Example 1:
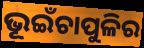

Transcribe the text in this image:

ଭୂଇଁଚାପୁଳିର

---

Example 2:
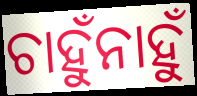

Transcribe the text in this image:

ଚାହୁଁନାହୁଁ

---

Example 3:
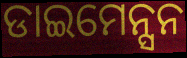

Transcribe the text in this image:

ଡାଇମେନ୍ସନ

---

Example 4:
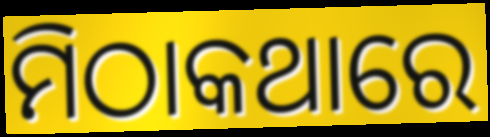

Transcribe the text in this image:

ମିଠାକଥାରେ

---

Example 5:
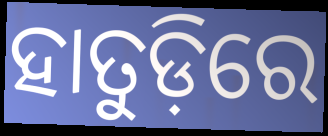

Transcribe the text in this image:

ହାତୁଡ଼ିରେ